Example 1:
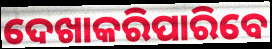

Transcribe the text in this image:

ଦେଖାକରିପାରିବେ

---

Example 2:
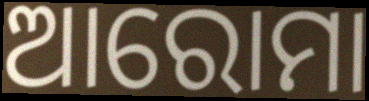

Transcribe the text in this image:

ଆରୋମା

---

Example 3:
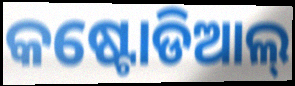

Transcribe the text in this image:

କଷ୍ଟୋଡିଆଲ୍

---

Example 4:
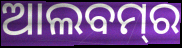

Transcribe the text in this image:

ଆଲବମ୍‌ର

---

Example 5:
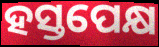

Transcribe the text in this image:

ହସ୍ତପେକ୍ଷ